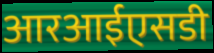
आरआईएसडी